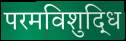
परमविशुद्धि